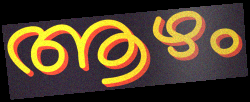
ആഴം